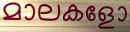
മാലകളോ